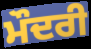
ਮੌਦਰੀ